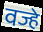
वज्हे